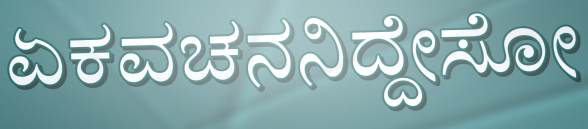
ಏಕವಚನನಿದ್ದೇಸೋ